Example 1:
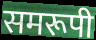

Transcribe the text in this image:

समरूपी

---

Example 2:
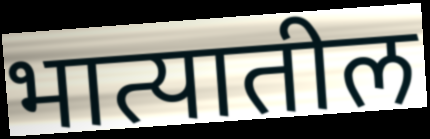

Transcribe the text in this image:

भात्यातील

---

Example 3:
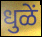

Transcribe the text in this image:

धुळें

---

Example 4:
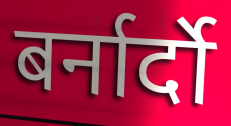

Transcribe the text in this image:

बर्नार्दो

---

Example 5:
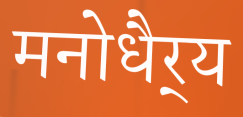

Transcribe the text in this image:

मनोधैर्य